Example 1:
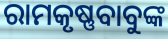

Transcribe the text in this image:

ରାମକୃଷ୍ଣବାବୁଙ୍କ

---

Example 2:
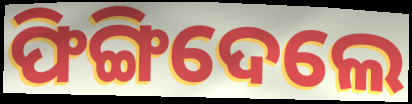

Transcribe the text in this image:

ଫିଙ୍ଗିଦେଲେ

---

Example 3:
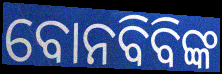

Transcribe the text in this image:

ବୋନବିବିଙ୍କ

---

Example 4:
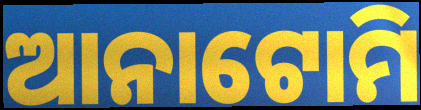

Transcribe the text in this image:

ଆନାଟୋମି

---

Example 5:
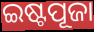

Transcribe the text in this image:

ଇଷ୍ଟପୂଜା